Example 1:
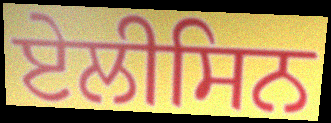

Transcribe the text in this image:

ਏਲੀਸਿਨ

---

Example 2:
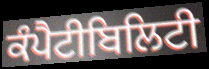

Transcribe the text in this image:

ਕੰਪੈਟੀਬਿਲਿਟੀ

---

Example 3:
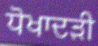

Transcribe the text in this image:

ਧੋਖਾਦੜੀ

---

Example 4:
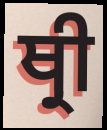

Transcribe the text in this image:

ਥ੍ਰੀ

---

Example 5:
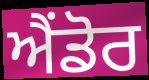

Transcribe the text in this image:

ਐਂਡੋਰ